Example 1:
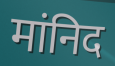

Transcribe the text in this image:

मांनिद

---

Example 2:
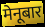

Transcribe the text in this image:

मेनूबार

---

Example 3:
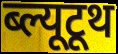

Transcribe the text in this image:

ब्ल्यूटूथ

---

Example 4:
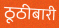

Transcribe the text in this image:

ठूठीबारी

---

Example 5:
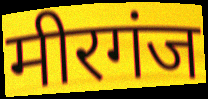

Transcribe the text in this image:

मीरगंज